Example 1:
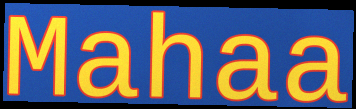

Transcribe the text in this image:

Mahaa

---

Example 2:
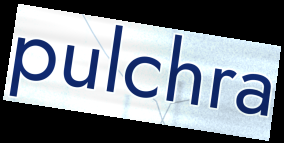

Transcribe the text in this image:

pulchra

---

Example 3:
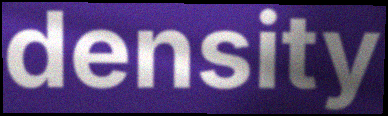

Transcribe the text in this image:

density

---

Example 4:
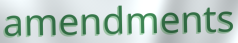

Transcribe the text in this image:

amendments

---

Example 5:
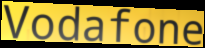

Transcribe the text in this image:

Vodafone